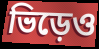
ভিড়েও